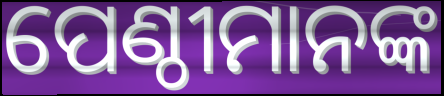
ପେଣ୍ଠୀମାନଙ୍କ